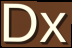
Dx